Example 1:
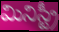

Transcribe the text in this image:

మినిస్ట్రీ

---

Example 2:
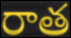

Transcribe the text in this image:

రాత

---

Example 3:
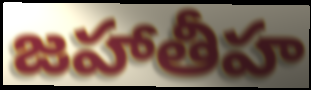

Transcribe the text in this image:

జహాతీహ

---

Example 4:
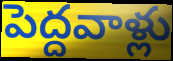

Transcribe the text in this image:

పెద్దవాళ్లు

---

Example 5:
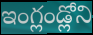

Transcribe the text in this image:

ఇంగ్లండ్లోని